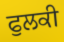
ਫੁਲਕੀ